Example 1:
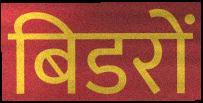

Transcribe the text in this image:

बिडरों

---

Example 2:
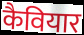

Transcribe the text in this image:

कैवियार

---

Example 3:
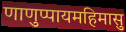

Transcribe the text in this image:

णाणुप्पायमहिमासु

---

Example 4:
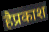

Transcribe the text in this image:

हैप्रकाश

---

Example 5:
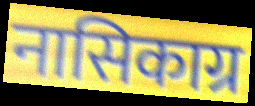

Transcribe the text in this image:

नासिकाग्र